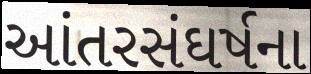
આંતરસંઘર્ષના